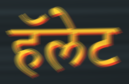
हॅलेट